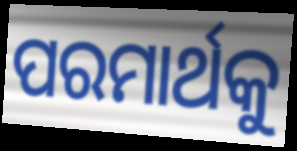
ପରମାର୍ଥକୁ